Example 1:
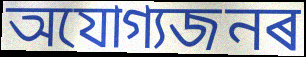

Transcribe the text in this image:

অযোগ্যজনৰ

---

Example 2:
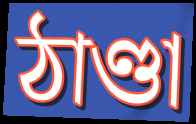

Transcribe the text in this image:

ঠাণ্ডা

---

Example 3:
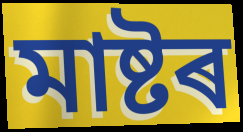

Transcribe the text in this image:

মাষ্টৰ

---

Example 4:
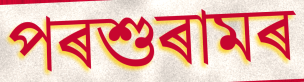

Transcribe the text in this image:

পৰশুৰামৰ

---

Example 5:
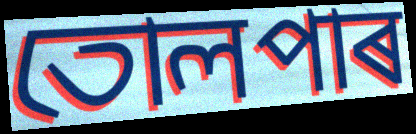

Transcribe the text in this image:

তোলপাৰ